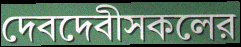
দেবদেবীসকলের